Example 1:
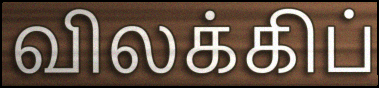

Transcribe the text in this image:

விலக்கிப்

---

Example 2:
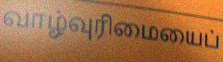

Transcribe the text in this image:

வாழ்வுரிமையைப்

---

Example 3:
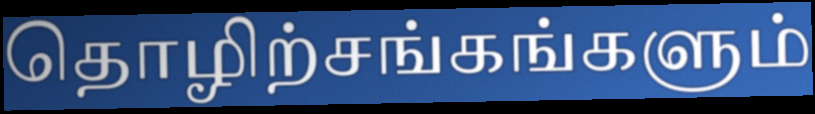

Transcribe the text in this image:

தொழிற்சங்கங்களும்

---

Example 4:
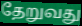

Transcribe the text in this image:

தேறுவது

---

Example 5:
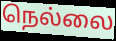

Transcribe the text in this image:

நெல்லை